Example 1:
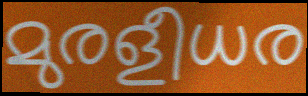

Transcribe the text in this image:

മുരളീധര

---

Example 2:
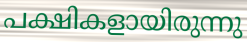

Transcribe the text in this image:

പക്ഷികളായിരുന്നു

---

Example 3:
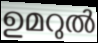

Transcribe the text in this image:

ഉമറുൽ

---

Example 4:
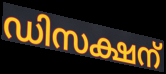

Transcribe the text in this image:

ഡിസക്ഷന്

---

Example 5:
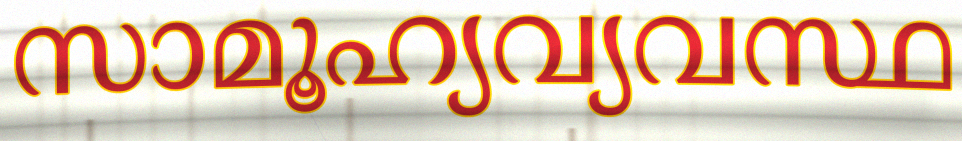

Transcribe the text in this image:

സാമൂഹ്യവ്യവസ്ഥ